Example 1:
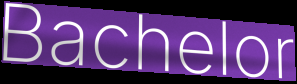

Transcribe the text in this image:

Bachelor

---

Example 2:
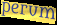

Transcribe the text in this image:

perum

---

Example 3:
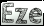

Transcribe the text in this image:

Eze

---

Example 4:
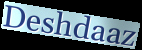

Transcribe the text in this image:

Deshdaaz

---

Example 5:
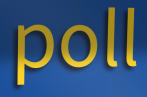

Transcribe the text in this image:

poll